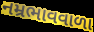
નમ્રભાવવાળા